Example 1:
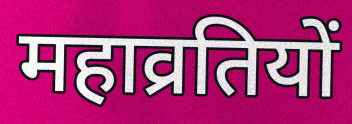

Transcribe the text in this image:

महाव्रतियों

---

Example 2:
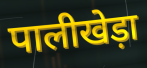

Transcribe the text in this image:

पालीखेड़ा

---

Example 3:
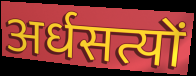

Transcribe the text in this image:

अर्धसत्यों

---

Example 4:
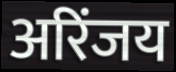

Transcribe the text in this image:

अरिंजय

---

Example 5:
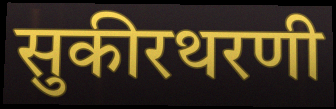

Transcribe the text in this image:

सुकीरथरणी